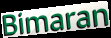
Bimaran